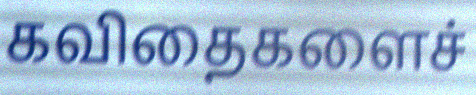
கவிதைகளைச்